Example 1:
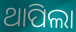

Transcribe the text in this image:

ଥାପିଲା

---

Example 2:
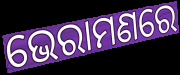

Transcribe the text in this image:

ଭେରାମଣରେ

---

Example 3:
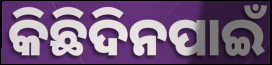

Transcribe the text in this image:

କିଛିଦିନପାଇଁ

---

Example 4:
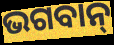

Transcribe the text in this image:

ଭଗବାନ୍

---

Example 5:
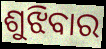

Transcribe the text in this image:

ଶୁଝିବାର